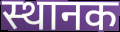
स्थानक